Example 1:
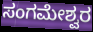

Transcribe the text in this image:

ಸಂಗಮೇಶ್ವರ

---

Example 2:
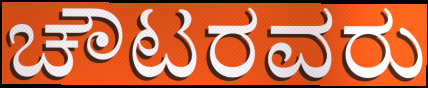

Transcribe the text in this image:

ಚೌಟರವರು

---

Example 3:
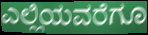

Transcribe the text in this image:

ಎಲ್ಲಿಯವರೆಗೂ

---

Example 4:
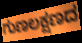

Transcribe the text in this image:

ಗುಣಲಕ್ಷಣದ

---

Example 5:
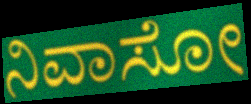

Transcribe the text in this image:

ನಿವಾಸೋ